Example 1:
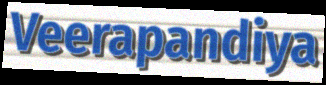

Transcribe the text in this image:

Veerapandiya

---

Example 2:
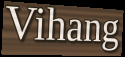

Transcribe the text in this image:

Vihang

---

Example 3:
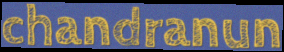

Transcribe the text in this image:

chandranun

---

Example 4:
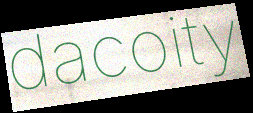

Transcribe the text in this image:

dacoity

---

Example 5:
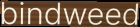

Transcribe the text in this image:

bindweed